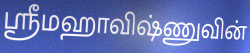
ஸ்ரீமஹாவிஷ்ணுவின்